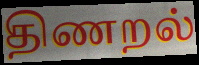
திணறல்